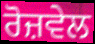
ਰੋਜ਼ਵੇਲ